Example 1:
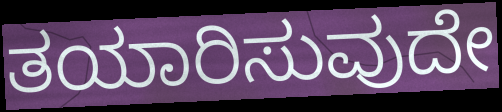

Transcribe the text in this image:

ತಯಾರಿಸುವುದೇ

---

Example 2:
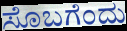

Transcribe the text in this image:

ಸೊಬಗೆಂದು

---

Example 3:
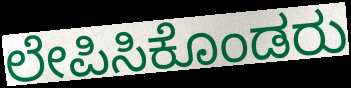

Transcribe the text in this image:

ಲೇಪಿಸಿಕೊಂಡರು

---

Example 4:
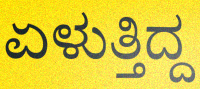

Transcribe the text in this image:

ಏಳುತ್ತಿದ್ದ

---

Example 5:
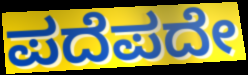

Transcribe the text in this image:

ಪದೆಪದೇ